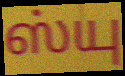
ஸ்யு